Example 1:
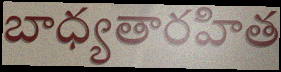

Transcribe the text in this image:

బాధ్యతారహిత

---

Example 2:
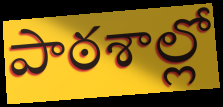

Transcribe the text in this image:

పాఠశాల్లో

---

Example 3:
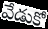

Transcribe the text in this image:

వేడుకో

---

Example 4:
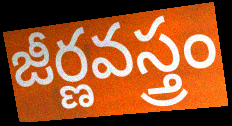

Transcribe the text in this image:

జీర్ణవస్త్రం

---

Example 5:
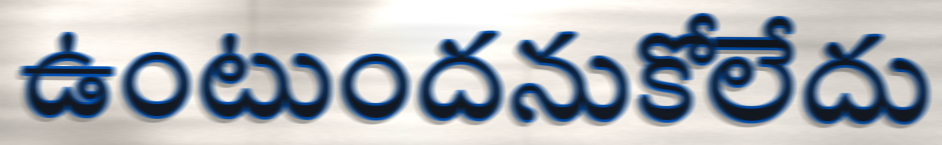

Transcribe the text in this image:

ఉంటుందనుకోలేదు